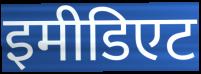
इमीडिएट